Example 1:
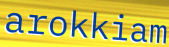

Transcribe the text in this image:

arokkiam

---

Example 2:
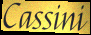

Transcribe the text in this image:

Cassini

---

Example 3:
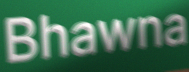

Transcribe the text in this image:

Bhawna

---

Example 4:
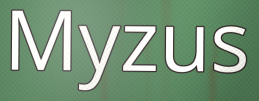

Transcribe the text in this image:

Myzus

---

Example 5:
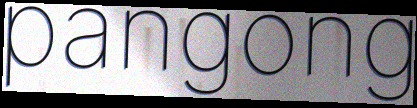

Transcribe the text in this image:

pangong